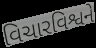
વિચારવિશ્વને